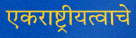
एकराष्ट्रीयत्वाचे